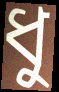
ধু